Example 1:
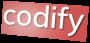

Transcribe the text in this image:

codify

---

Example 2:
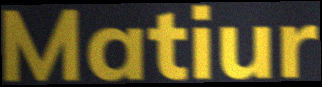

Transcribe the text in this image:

Matiur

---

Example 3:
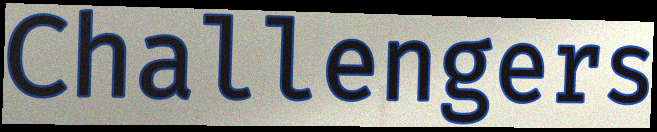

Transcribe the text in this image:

Challengers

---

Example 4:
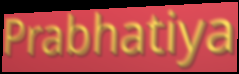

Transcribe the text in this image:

Prabhatiya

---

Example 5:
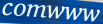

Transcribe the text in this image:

comwww